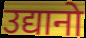
उद्यानो